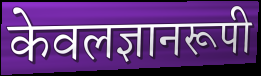
केवलज्ञानरूपी